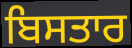
ਬਿਸਤਾਰ